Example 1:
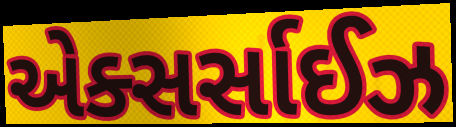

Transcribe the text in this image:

એક્સર્સાઈઝ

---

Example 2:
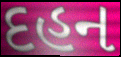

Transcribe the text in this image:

દહન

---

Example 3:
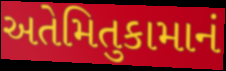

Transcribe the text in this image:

અતેમિતુકામાનં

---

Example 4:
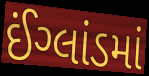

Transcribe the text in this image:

ઈંગ્લાંડમાં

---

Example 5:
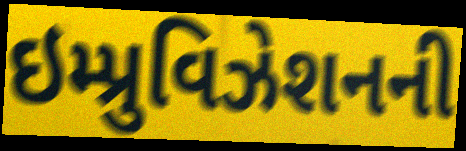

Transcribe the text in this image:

ઇમ્પ્રુવિઝેશનની